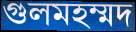
গুলমহম্মদ